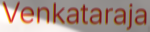
Venkataraja